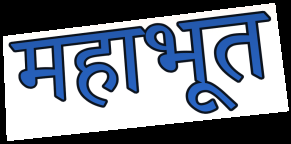
महाभूत